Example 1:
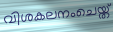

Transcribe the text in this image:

വിശകലനംചെയ്ത്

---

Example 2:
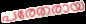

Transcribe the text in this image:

പരേതരായ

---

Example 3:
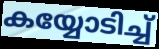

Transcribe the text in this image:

കയ്യോടിച്ച്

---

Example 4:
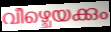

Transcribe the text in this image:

വീഴ്ചെയക്കും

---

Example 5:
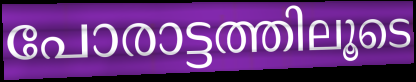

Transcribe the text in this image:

പോരാട്ടത്തിലൂടെ